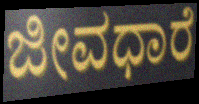
ಜೀವಧಾರೆ